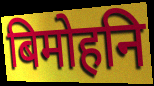
बिमोहनि